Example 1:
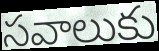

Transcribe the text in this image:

సవాలుకు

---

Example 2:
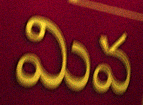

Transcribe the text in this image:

మివ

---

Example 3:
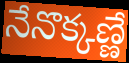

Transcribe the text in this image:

నేనొక్కణ్ణే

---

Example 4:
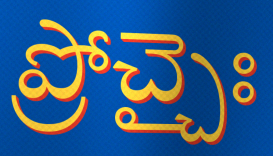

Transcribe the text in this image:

ప్రోచ్చైః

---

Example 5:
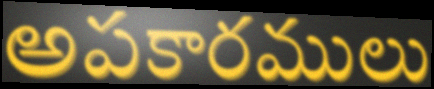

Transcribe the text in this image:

అపకారములు